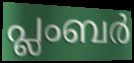
പ്ലംബർ